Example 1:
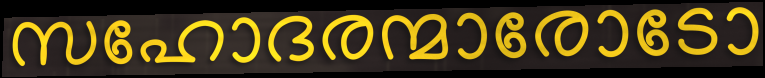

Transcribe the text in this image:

സഹോദരന്മാരോടോ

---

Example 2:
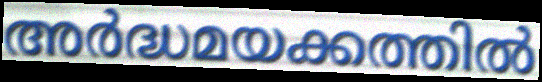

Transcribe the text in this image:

അർദ്ധമയക്കത്തിൽ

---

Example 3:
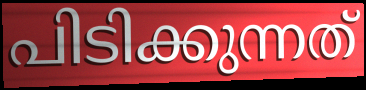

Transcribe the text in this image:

പിടിക്കുന്നത്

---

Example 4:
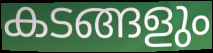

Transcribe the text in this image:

കടങ്ങളും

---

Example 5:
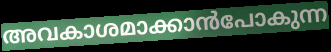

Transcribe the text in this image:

അവകാശമാക്കാൻപോകുന്ന